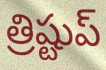
త్రిష్టుప్